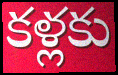
కళ్లకు